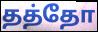
தத்தோ